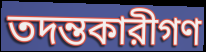
তদন্তকারীগণ